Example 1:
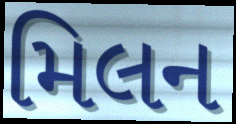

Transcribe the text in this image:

મિલન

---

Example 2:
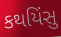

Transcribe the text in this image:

કથયિંસુ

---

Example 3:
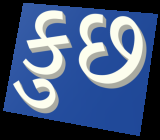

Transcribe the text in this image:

કુછ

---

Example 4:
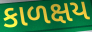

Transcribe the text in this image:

કાળક્ષય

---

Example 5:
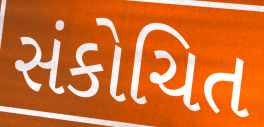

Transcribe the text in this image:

સંકોચિત